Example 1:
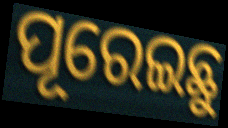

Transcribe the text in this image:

ପୂରେଇଛୁ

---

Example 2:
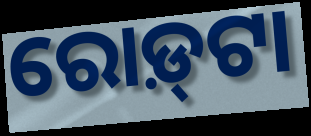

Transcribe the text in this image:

ରୋଡ଼୍‌ଟା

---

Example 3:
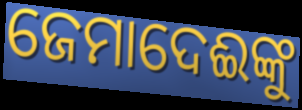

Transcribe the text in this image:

ଜେମାଦେଈଙ୍କୁ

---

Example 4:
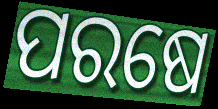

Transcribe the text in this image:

ପରଷେ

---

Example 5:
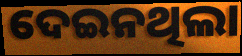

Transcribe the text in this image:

ଦେଇନଥିଲା